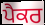
ਪੈਕਰ